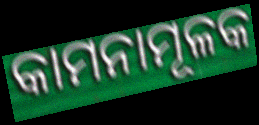
କାମନାମୂଳକ